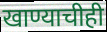
खाण्याचीही